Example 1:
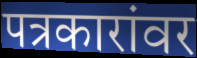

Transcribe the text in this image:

पत्रकारांवर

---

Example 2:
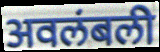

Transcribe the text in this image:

अवलंबली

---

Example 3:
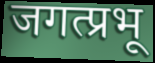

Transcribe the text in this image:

जगत्प्रभू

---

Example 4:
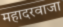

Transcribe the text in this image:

महादरवाजा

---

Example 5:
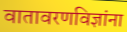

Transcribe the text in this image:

वातावरणविज्ञांना